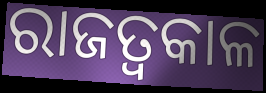
ରାଜତ୍ଵକାଳ